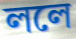
ললে